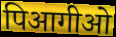
पिआगीओ